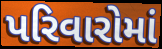
પરિવારોમાં